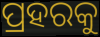
ପ୍ରହରକୁ